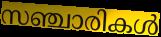
സഞ്ചാരികൾ